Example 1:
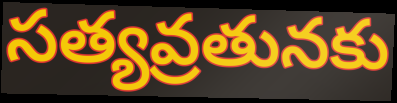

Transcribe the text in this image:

సత్యవ్రతునకు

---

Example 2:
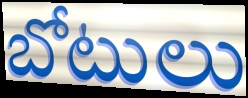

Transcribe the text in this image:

బోటులు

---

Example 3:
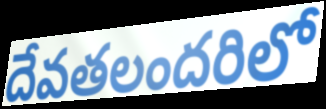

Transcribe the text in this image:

దేవతలందరిలో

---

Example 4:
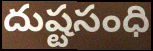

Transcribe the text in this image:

దుష్టసంధి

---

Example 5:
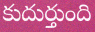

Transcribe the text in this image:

కుదుర్తుంది